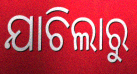
ଯାଚିଲାରୁ